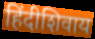
हिंदीशिवाय